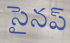
సైనప్